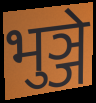
भुञ्जे